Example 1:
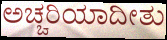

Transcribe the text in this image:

ಅಚ್ಚರಿಯಾದೀತು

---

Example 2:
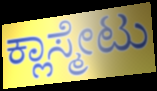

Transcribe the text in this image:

ಕ್ಲಾಸ್ಮೇಟು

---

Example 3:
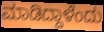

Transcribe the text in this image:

ಮಾಡಿದ್ದಾಳೆಂದು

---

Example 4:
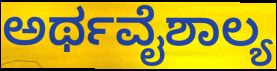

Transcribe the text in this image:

ಅರ್ಥವೈಶಾಲ್ಯ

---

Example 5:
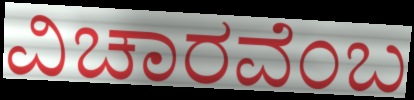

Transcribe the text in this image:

ವಿಚಾರವೆಂಬ